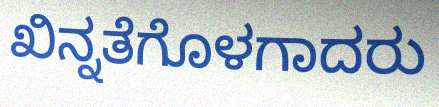
ಖಿನ್ನತೆಗೊಳಗಾದರು